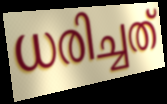
ധരിച്ചത്